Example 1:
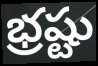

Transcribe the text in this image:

భ్రష్టు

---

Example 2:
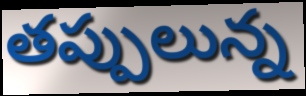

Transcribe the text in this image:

తప్పులున్న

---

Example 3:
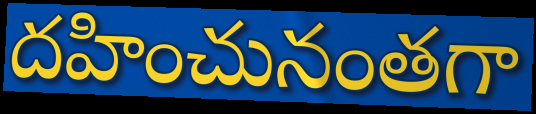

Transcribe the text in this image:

దహించునంతగా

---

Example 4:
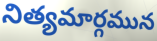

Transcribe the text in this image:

నిత్యమార్గమున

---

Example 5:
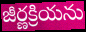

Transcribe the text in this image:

జీర్ణక్రియను